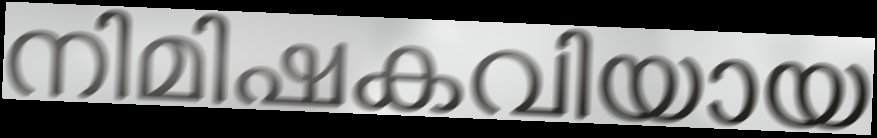
നിമിഷകവിയായ